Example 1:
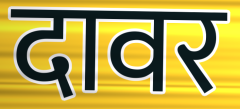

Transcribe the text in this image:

दावर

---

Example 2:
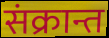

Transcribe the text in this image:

संक्रान्त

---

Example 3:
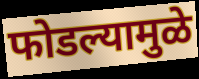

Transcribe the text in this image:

फोडल्यामुळे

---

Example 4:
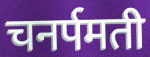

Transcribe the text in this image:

चनर्पमती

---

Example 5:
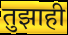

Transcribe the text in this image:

तुझाही